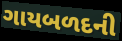
ગાયબળદની